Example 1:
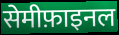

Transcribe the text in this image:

सेमीफ़ाइनल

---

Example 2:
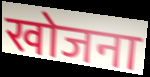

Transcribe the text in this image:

खोजना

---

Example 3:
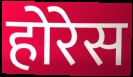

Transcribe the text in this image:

होरेस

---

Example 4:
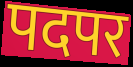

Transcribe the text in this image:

पदपर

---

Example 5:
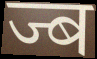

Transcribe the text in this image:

ज्ब